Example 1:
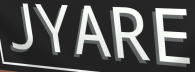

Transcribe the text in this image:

JYARE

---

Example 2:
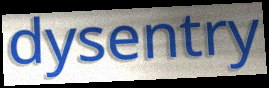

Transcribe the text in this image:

dysentry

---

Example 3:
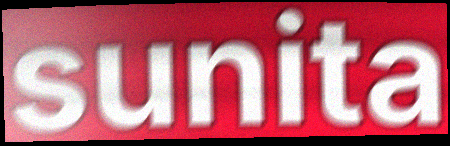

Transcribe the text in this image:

sunita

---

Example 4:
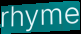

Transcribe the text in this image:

rhyme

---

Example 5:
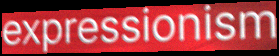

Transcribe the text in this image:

expressionism